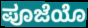
ಪೂಜೆಯೊ